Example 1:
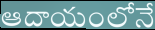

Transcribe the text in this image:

ఆదాయంలోనే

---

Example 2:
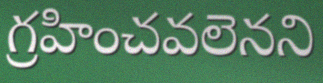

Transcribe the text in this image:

గ్రహించవలెనని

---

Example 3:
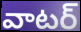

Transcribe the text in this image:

వాటర్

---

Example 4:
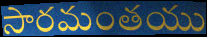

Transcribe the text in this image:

సారమంతయు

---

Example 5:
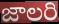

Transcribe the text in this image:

జాలరి